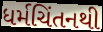
ધર્મચિંતનથી